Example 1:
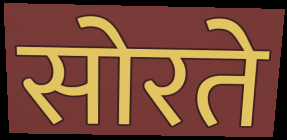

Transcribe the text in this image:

सोरते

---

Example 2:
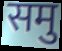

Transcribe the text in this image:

समु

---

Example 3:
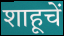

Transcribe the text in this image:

शाहूचें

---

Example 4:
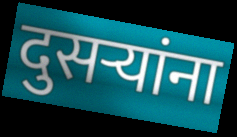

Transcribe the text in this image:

दुसर्‍यांना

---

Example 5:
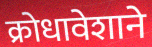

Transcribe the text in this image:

क्रोधावेशाने